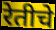
रेतीचे